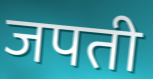
जपती